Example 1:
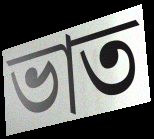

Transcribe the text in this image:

ভাত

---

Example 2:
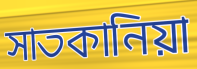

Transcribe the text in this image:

সাতকানিয়া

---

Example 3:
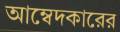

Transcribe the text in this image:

আম্বেদকারের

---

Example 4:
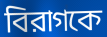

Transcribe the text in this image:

বিরাগকে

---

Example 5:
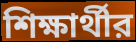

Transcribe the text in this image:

শিক্ষার্থীর